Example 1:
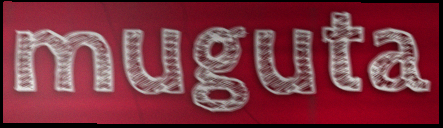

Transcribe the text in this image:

muguta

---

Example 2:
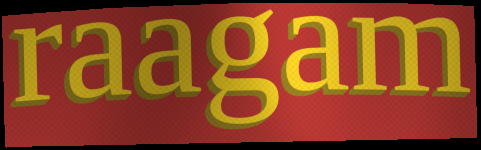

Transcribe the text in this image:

raagam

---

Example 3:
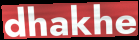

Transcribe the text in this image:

dhakhe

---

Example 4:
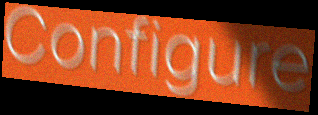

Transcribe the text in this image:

Configure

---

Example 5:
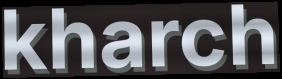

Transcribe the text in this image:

kharch